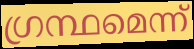
ഗ്രന്ഥമെന്ന്